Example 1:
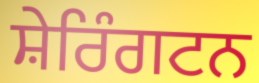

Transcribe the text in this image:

ਸ਼ੇਰਿੰਗਟਨ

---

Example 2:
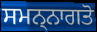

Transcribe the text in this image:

ਸਮਨ੍ਨਾਗਤੋ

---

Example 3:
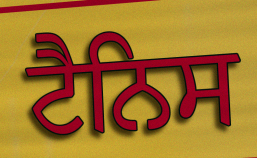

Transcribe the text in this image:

ਟੈਨਿਸ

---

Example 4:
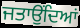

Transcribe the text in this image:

ਜਤਾਉੰਦਿਆਂ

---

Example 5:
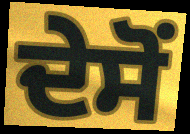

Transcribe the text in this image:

ਦੇਸੋਂ